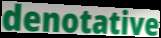
denotative